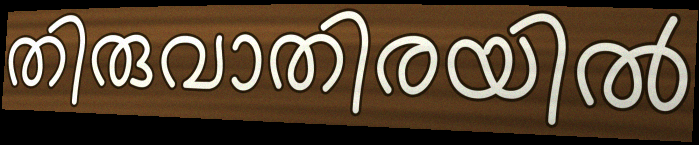
തിരുവാതിരയിൽ